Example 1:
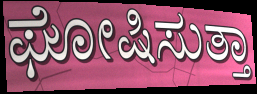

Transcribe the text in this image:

ಘೋಷಿಸುತ್ತಾ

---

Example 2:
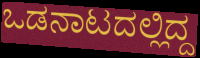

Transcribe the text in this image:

ಒಡನಾಟದಲ್ಲಿದ್ದ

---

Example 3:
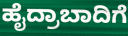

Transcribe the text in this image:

ಹೈದ್ರಾಬಾದಿಗೆ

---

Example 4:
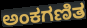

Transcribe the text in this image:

ಅಂಕಗಣಿತ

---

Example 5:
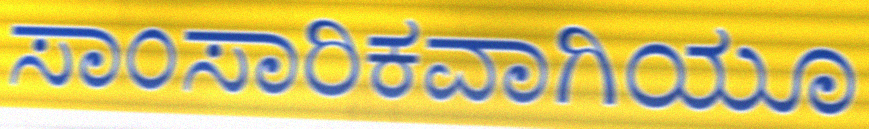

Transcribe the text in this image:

ಸಾಂಸಾರಿಕವಾಗಿಯೂ